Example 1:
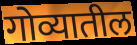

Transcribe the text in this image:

गोव्यातील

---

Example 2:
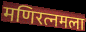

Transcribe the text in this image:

मणिरत्नमला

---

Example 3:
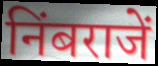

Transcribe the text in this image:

निंबराजें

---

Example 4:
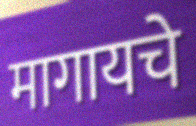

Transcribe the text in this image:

मागायचे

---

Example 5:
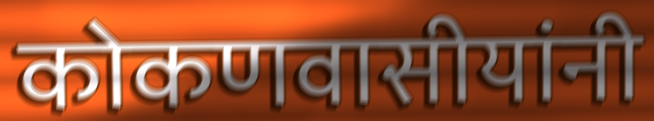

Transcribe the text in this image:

कोकणवासीयांनी